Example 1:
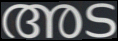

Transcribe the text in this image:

അട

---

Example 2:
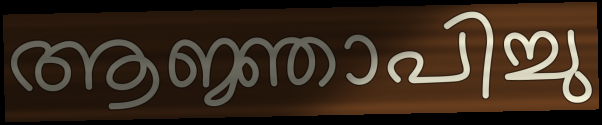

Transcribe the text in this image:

ആജ്ഞാപിച്ചു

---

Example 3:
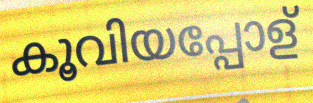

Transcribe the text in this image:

കൂവിയപ്പോള്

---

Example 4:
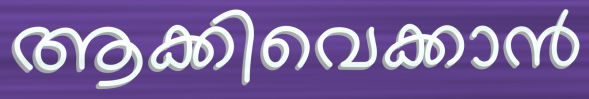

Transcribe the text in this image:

ആക്കിവെക്കാൻ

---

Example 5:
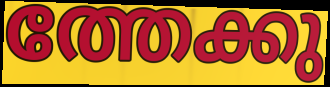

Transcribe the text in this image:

ത്തേക്കു